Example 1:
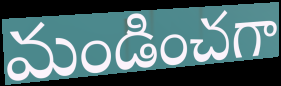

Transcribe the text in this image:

మండించగా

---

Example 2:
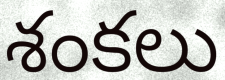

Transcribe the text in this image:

శంకలు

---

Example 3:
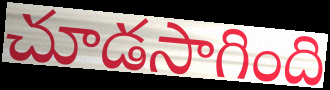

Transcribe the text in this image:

చూడసాగింది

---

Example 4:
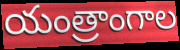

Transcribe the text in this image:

యంత్రాంగాల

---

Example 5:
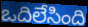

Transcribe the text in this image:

ఒదిలేసింది